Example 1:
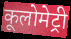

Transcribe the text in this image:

कूलोमेट्री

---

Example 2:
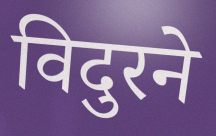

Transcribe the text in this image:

विदुरने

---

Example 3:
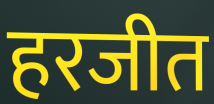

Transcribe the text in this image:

हरजीत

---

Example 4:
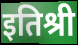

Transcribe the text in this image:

इतिश्री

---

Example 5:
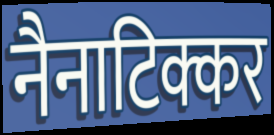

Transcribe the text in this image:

नैनाटिक्कर